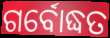
ଗର୍ବୋଦ୍ଧତ